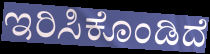
ಇರಿಸಿಕೊಂಡಿದೆ